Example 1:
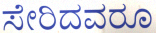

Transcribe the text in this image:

ಸೇರಿದವರೂ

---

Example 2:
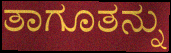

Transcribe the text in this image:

ತಾಗೂತನ್ನು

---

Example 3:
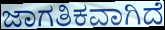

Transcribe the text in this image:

ಜಾಗತಿಕವಾಗಿದೆ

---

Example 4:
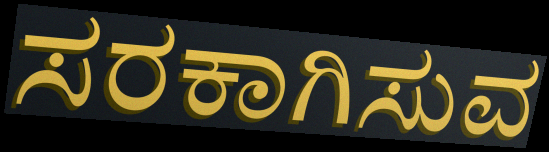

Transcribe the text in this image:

ಸರಕಾಗಿಸುವ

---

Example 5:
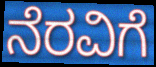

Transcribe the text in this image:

ನೆರವಿಗೆ